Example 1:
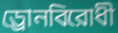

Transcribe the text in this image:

ড্রোনবিরোধী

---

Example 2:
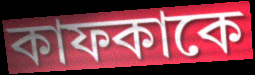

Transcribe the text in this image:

কাফকাকে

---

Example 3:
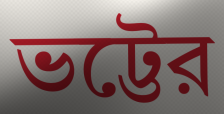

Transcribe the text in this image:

ভট্টের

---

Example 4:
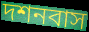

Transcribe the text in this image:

দশনবাস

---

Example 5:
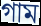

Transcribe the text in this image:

গাম